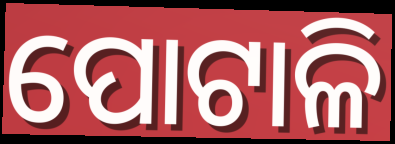
ପୋଟାଳି